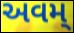
અવમ્